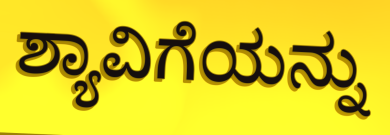
ಶ್ಯಾವಿಗೆಯನ್ನು